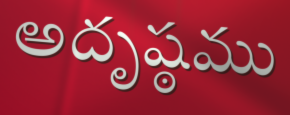
అదృష్ఠము